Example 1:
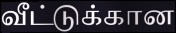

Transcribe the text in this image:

வீட்டுக்கான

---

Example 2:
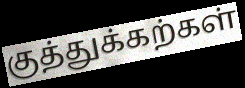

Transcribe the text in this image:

குத்துக்கற்கள்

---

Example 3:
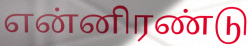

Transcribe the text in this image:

என்னிரண்டு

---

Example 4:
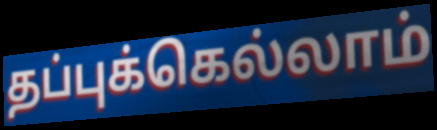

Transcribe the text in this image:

தப்புக்கெல்லாம்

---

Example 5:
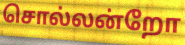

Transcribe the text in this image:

சொல்லன்றோ